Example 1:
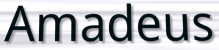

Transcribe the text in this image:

Amadeus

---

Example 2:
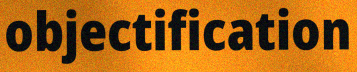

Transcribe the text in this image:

objectification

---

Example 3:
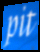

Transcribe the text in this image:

pit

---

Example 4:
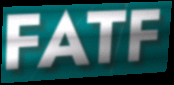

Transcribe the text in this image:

FATF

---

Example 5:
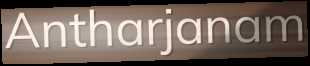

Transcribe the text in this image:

Antharjanam